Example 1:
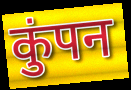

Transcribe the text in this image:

कुंपन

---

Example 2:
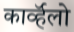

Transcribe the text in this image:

कार्व्हॅलो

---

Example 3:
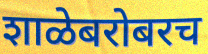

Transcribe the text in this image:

शाळेबरोबरच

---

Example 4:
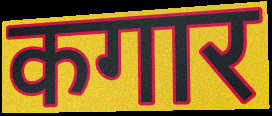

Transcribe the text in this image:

कगार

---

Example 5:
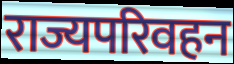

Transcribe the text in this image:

राज्यपरिवहन